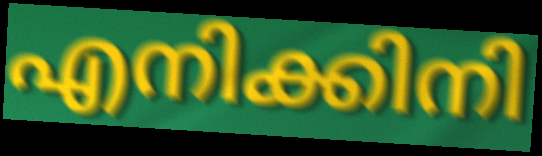
എനിക്കിനി